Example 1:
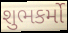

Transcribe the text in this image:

શુભકર્મો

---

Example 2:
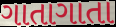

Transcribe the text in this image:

ગાતાગાતા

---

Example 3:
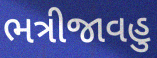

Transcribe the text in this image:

ભત્રીજાવહુ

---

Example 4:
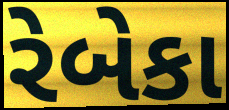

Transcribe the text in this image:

રેબેકા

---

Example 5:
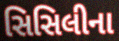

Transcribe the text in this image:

સિસિલીના